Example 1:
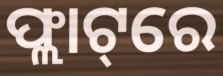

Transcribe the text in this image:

ଫ୍ଲାଟ୍‌ରେ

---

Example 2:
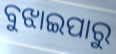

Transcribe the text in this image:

ବୁଝାଇପାରୁ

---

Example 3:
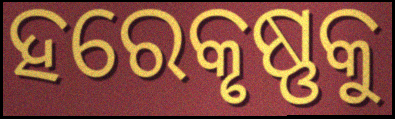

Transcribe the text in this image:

ହରେକୃଷ୍ଣକୁ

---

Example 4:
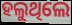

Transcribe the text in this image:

ହଲୁଥିଲେ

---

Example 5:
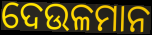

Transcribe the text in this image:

ଦେଉଳମାନ